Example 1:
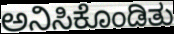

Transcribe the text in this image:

ಅನಿಸಿಕೊಂಡಿತು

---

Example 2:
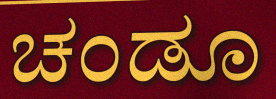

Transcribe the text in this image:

ಚಂಡೂ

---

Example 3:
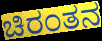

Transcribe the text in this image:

ಚಿರಂತನ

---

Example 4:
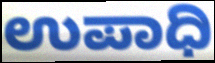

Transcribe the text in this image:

ಉಪಾಧಿ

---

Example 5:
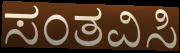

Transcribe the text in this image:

ಸಂತವಿಸಿ